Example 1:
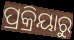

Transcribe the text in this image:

ପ୍ରକ୍ରିୟାରୁ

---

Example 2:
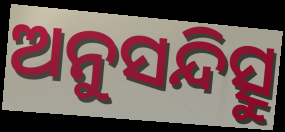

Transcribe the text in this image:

ଅନୁସନ୍ଦିତ୍ସୁ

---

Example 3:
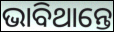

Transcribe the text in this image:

ଭାବିଥାନ୍ତେ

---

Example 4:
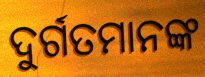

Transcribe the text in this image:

ଦୁର୍ଗତମାନଙ୍କ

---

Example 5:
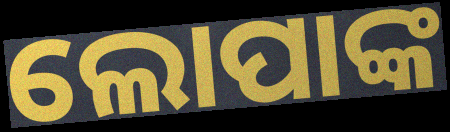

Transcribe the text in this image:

ଲୋପାଙ୍କ